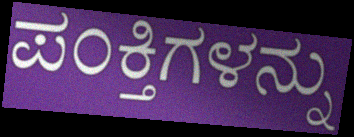
ಪಂಕ್ತಿಗಳನ್ನು